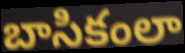
బాసికంలా